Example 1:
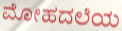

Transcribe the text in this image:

ಮೋಹದಲೆಯ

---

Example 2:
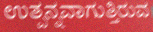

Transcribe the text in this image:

ಉತ್ಪನ್ನವಾಗುತ್ತಿರುವ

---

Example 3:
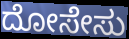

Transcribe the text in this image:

ದೋಸೇಸು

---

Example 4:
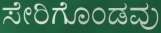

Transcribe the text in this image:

ಸೇರಿಗೊಂಡವು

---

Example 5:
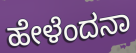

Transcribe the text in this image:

ಹೇಳೆಂದನಾ